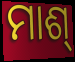
ମାଶ୍